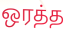
ஒரத்த